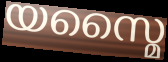
യസ്മൈ